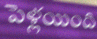
పెళ్లయింది